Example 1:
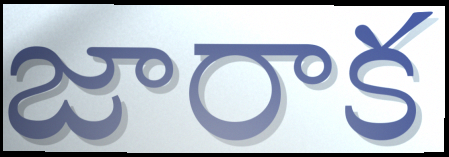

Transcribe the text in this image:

జారాక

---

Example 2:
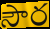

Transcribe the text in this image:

సౌర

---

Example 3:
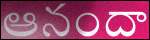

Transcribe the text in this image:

ఆనందా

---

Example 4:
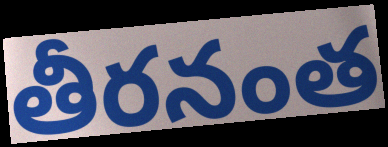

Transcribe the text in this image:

తీరనంత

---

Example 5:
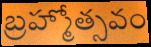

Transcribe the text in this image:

బ్రహ్మోత్సవం